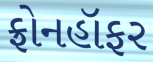
ફ્રોનહૉફર